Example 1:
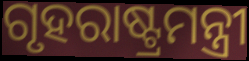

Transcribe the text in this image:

ଗୃହରାଷ୍ଟ୍ରମନ୍ତ୍ରୀ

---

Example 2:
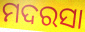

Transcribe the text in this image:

ମଦରସା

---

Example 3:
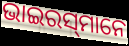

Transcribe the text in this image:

ଭାଇରସ୍‌ମାନେ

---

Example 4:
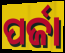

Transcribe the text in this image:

ପର୍ଜା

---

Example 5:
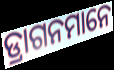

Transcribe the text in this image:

ଡ୍ରାଗନମାନେ